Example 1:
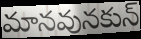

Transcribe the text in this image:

మానవునకున్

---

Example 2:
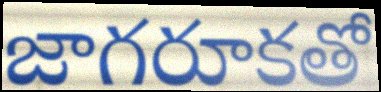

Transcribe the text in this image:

జాగరూకతో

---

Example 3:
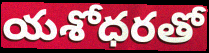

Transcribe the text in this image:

యశోధరతో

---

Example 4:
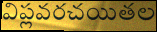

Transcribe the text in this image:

విప్లవరచయితల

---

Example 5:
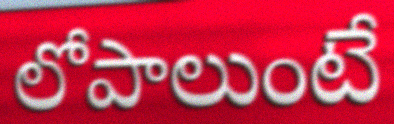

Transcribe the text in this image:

లోపాలుంటే